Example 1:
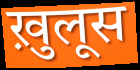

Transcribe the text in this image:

ख़ुलूस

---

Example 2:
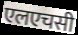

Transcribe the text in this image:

एलएचसी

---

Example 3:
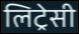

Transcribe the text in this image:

लिट्रेसी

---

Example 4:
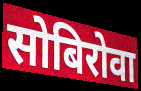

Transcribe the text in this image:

सोबिरोवा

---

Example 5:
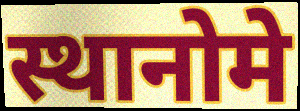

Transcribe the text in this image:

स्थानोमे